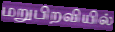
மறுபிறவியில்